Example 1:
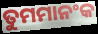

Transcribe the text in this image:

ତୁମମାନଂକ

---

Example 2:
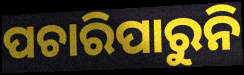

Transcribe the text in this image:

ପଚାରିପାରୁନି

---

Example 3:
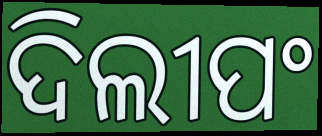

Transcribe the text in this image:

ଦିଲୀପଂ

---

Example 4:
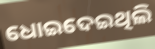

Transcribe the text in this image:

ଧୋଇଦେଇଥିଲି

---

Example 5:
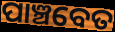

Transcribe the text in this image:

ପାଞ୍ଚବେତ